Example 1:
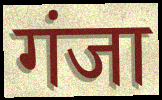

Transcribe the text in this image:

गंजा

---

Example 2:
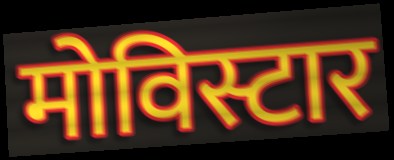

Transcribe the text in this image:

मोविस्टार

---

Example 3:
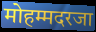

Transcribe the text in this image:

मोहम्मदरजा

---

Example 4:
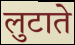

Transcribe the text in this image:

लुटाते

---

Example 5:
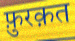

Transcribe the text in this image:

फ़ुरक़त